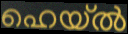
ഹെയ്ൽ